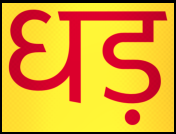
धड़